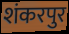
शंकरपुर